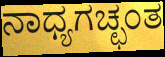
ನಾಧ್ಯಗಚ್ಛಂತ